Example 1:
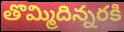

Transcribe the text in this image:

తొమ్మిదిన్నరకి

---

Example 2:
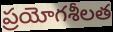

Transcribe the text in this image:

ప్రయోగశీలత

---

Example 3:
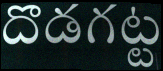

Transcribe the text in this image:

దొడగట్ట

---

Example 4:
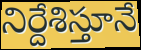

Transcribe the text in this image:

నిర్దేశిస్తూనే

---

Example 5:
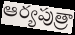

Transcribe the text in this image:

ఆర్యపుత్రా